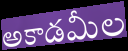
అకాడమీల